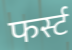
फर्स्‍ट